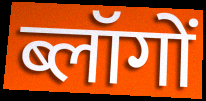
ब्‍लॉगों